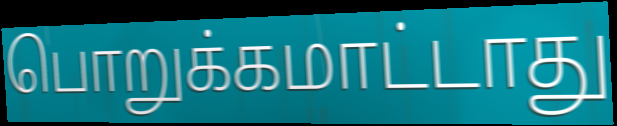
பொறுக்கமாட்டாது